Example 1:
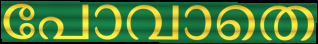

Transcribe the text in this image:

പോവാതെ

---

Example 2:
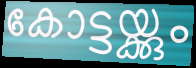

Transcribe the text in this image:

കോട്ടയ്ക്കും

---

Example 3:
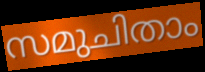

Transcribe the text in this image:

സമുചിതാം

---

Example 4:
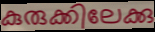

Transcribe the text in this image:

കുരുക്കിലേക്കു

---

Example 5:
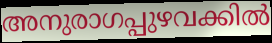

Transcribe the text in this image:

അനുരാഗപ്പുഴവക്കിൽ